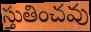
స్తుతించవు